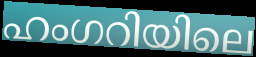
ഹംഗറിയിലെ